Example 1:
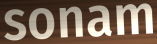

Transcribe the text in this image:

sonam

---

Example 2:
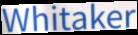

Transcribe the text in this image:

Whitaker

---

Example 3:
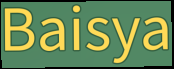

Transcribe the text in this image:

Baisya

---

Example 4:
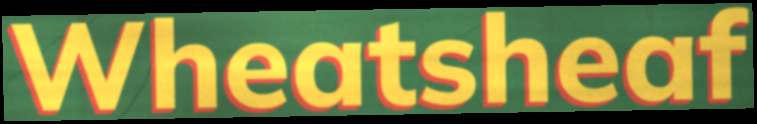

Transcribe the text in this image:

Wheatsheaf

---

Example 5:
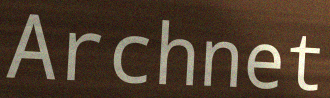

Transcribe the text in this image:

Archnet